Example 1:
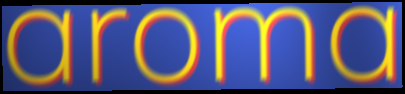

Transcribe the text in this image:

aroma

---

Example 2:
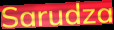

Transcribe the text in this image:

Sarudza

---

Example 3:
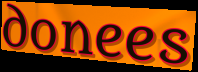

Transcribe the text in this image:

donees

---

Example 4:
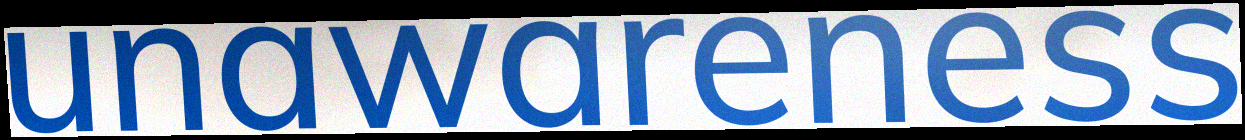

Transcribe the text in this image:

unawareness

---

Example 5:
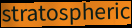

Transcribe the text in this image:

stratospheric